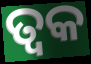
ତ୍ୱକ